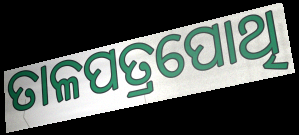
ତାଳପତ୍ରପୋଥି